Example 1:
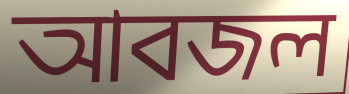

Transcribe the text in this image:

আবজল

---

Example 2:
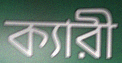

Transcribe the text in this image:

ক্যারী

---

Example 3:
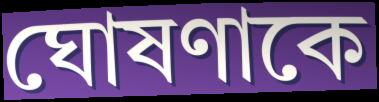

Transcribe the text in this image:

ঘোষণাকে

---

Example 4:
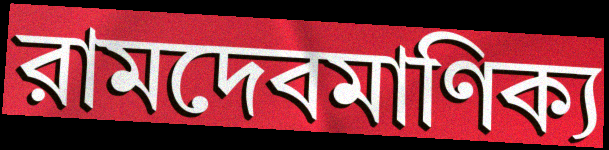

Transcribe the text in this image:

রামদেবমাণিক্য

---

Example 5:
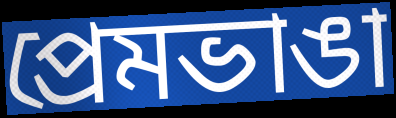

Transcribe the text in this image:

প্রেমভাঙা